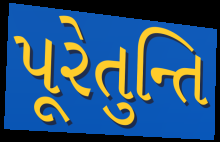
પૂરેતુન્તિ